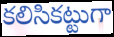
కలిసికట్టుగా